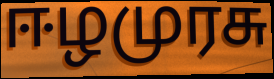
ஈழமுரசு